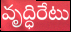
వృద్ధిరేటు